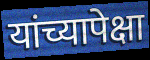
यांच्यापेक्षा